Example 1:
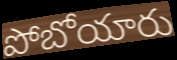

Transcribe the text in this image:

పోబోయారు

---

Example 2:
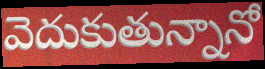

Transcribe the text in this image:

వెదుకుతున్నానో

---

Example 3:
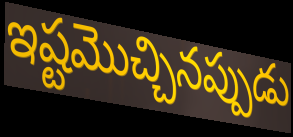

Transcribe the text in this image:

ఇష్టమొచ్చినప్పుడు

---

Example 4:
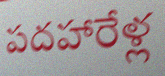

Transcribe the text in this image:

పదహారేళ్ల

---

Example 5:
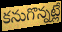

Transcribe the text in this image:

కనుగొన్నట్లే